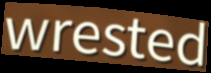
wrested